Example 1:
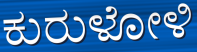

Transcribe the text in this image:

ಕುರುಳೋಳಿ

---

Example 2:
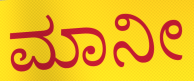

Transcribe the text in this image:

ಮಾನೀ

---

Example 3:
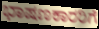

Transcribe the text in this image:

ಭಾಷಣಕಾರರಿಗೆ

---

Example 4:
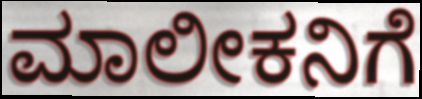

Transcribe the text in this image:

ಮಾಲೀಕನಿಗೆ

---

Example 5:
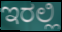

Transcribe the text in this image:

ಇರಲ್ಲಿ